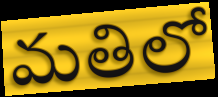
మతిలో